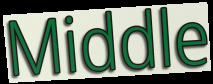
Middle